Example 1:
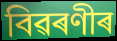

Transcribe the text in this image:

বিৱৰণীৰ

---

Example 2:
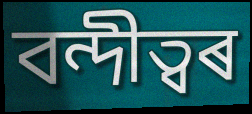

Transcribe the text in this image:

বন্দীত্বৰ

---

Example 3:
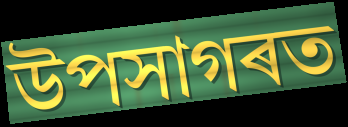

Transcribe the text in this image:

উপসাগৰত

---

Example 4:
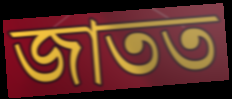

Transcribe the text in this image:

জাতত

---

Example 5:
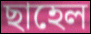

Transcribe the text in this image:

ছাহেল